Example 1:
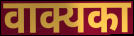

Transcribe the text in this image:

वाक्यका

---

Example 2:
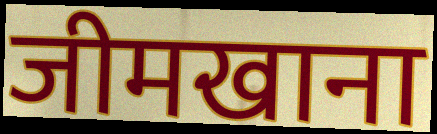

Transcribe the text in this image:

जीमखाना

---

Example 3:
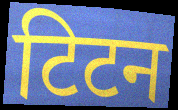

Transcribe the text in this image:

टिटन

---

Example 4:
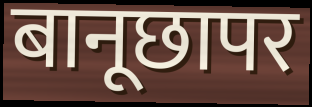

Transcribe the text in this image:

बानूछापर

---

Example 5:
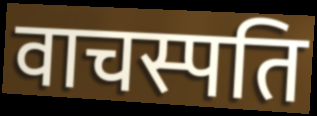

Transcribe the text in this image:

वाचस्पति